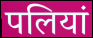
पलियां